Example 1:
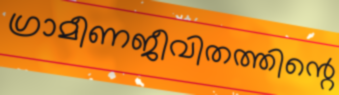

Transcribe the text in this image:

ഗ്രാമീണജീവിതത്തിന്റെ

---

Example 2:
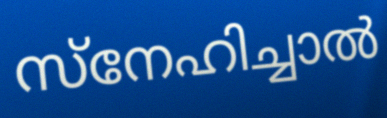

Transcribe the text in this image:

സ്നേഹിച്ചാൽ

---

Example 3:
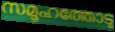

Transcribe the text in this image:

സമൂഹത്തോടു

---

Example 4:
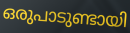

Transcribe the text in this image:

ഒരുപാടുണ്ടായി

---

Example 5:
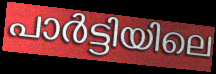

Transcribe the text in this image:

പാർട്ടിയിലെ